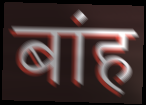
बांह